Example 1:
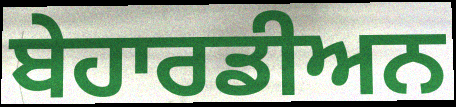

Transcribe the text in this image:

ਬੇਹਾਰਡੀਅਨ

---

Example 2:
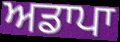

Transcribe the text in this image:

ਅਡਾਪਾ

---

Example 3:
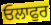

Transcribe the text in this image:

ਓਲਾਫੁਰ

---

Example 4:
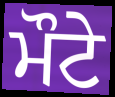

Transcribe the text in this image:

ਮੌਟੇ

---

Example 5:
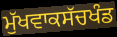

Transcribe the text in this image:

ਮੁੱਖਵਾਕਸੱਚਖੰਡ